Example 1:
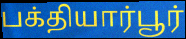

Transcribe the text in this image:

பக்தியார்பூர்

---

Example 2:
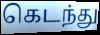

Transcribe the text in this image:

கெடந்து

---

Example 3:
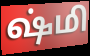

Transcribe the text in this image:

ஷ்மி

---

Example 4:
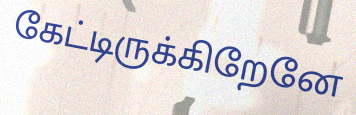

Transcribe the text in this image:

கேட்டிருக்கிறேனே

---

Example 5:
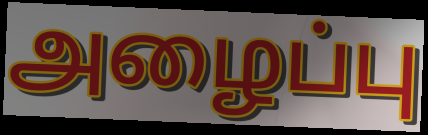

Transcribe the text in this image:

அழைப்பு